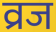
व्रज